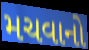
મચવાનો